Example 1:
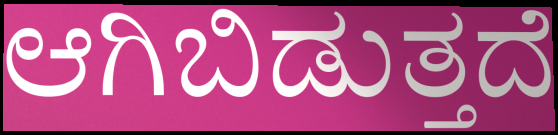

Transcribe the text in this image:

ಆಗಿಬಿಡುತ್ತದೆ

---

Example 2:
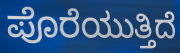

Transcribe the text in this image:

ಪೊರೆಯುತ್ತಿದೆ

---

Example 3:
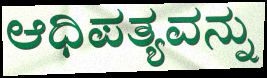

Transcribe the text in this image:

ಆಧಿಪತ್ಯವನ್ನು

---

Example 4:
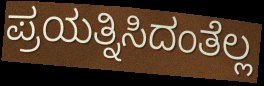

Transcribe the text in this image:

ಪ್ರಯತ್ನಿಸಿದಂತೆಲ್ಲ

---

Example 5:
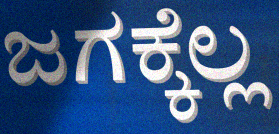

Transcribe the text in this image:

ಜಗಕ್ಕೆಲ್ಲ